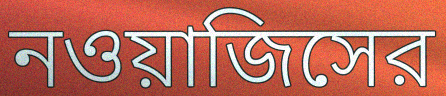
নওয়াজিসের